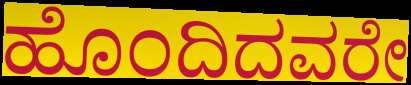
ಹೊಂದಿದವರೇ